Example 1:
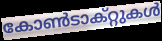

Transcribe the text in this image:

കോൺടാക്റ്റുകൾ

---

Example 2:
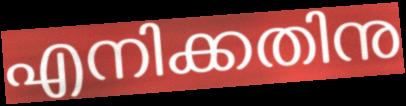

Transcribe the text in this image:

എനിക്കതിനു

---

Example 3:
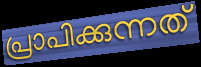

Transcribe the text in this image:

പ്രാപിക്കുന്നത്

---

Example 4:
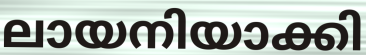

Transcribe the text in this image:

ലായനിയാക്കി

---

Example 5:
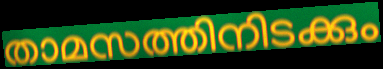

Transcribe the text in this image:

താമസത്തിനിടക്കും